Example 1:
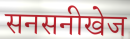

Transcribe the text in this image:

सनसनीखेज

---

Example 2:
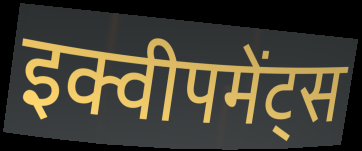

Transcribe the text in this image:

इक्वीपमेंट्स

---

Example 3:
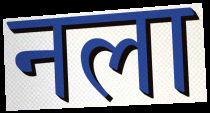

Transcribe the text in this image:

नला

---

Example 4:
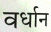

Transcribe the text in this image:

वर्धान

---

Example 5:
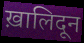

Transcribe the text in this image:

ख़ालिदून